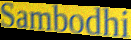
Sambodhi